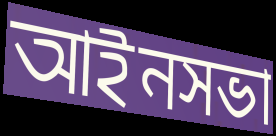
আইনসভা